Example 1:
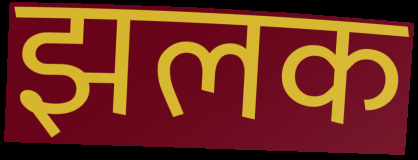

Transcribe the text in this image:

झलक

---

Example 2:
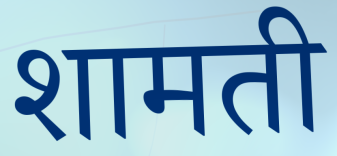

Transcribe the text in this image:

शामती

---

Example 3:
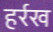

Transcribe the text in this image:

हर्रख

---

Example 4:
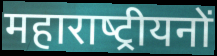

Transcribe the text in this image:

महाराष्ट्रीयनों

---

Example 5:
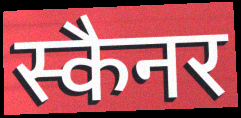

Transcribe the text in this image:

स्कैनर